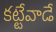
కట్టేవాడే